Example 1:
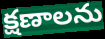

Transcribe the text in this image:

క్షణాలను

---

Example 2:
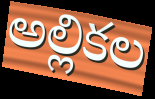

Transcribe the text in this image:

అల్లికల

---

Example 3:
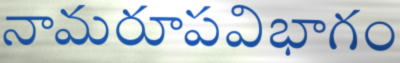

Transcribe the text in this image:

నామరూపవిభాగం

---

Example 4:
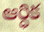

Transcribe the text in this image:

ఆర్ధిక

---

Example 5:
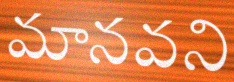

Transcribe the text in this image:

మానవని